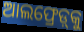
ଆଲଫ୍ରେଡ଼୍‍କୁ